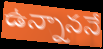
ఉన్నాననే